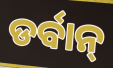
ଡର୍ବାନ୍